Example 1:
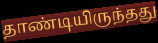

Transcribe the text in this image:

தாண்டியிருந்தது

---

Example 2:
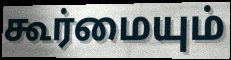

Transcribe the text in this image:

கூர்மையும்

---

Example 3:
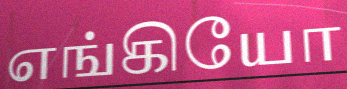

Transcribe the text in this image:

எங்கியோ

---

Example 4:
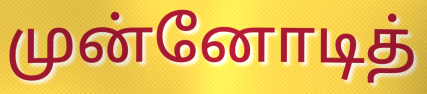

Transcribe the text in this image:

முன்னோடித்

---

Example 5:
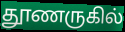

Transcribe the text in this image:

தூணருகில்